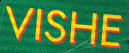
VISHE